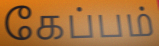
கேப்பம்